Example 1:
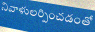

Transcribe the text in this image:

నివాళులర్పించడంతో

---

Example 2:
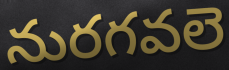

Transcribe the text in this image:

నురగవలె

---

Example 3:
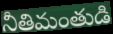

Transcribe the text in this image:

నీతిమంతుడి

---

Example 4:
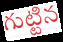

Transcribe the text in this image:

గుట్టిన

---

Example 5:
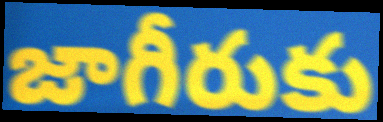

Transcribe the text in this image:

జాగీరుకు